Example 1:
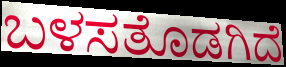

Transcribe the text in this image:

ಬಳಸತೊಡಗಿದೆ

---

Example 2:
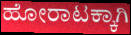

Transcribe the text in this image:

ಹೋರಾಟಕ್ಕಾಗಿ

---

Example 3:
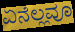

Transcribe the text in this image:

ಏನೆಲ್ಲವೂ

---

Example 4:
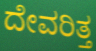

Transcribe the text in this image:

ದೇವರಿತ್ತ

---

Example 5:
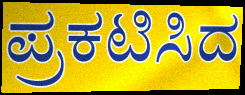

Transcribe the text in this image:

ಪ್ರಕಟಿಸಿದ